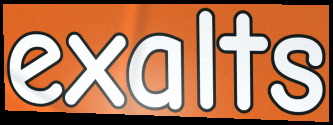
exalts